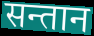
सन्तान